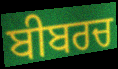
ਬੀਬਰਚ